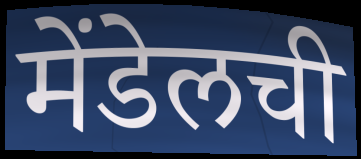
मेंडेलची